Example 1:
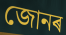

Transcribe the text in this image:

জোনৰ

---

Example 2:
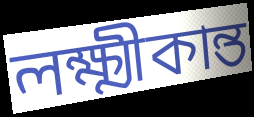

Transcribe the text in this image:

লক্ষ্মীকান্ত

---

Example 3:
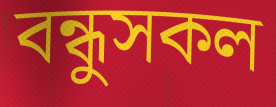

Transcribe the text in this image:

বন্ধুসকল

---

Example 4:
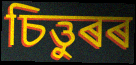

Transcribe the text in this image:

চিত্তুৰৰ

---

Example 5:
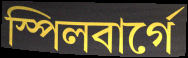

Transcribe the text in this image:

স্পিলবাৰ্গে